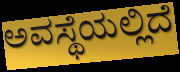
ಅವಸ್ಥೆಯಲ್ಲಿದೆ